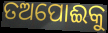
ତଅପୋଈକୁ